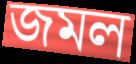
জমল